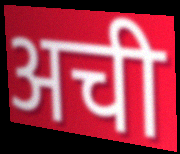
अची